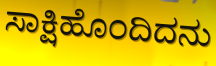
ಸಾಕ್ಷಿಹೊಂದಿದನು